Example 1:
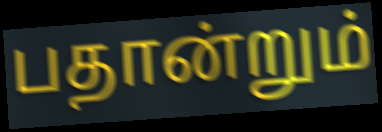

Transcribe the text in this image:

பதான்றும்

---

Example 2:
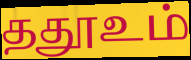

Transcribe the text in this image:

ததூஉம்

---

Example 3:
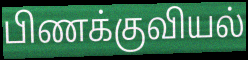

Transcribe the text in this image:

பிணக்குவியல்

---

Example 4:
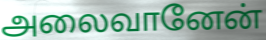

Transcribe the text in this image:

அலைவானேன்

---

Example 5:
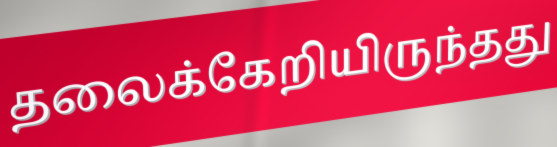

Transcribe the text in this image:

தலைக்கேறியிருந்தது